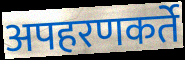
अपहरणकर्ते